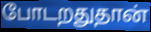
போடறதுதான்